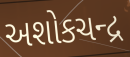
અશોકચન્દ્ર